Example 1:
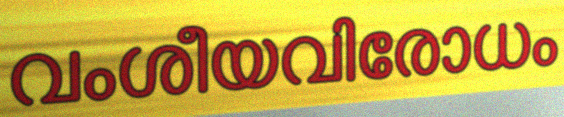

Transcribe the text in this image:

വംശീയവിരോധം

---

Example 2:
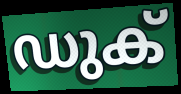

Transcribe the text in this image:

ഡുക്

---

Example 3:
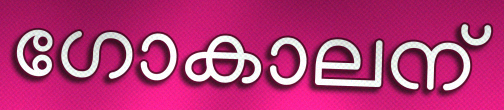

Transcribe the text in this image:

ഗോകാലന്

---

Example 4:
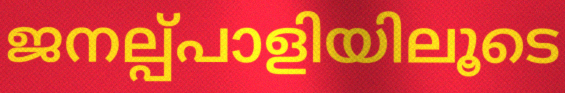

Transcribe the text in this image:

ജനല്പ്പാളിയിലൂടെ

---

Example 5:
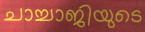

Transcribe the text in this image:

ചാച്ചാജിയുടെ